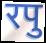
रपु